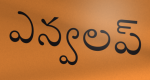
ఎన్వలప్